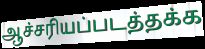
ஆச்சரியப்படத்தக்க